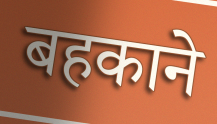
बहकाने